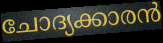
ചോദ്യക്കാരൻ